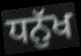
ਧਨੁੱਖ